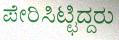
ಪೇರಿಸಿಟ್ಟಿದ್ದರು